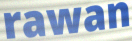
rawan